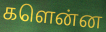
களென்ன